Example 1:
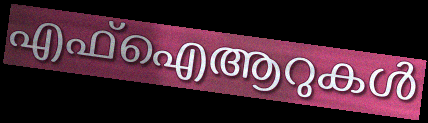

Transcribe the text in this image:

എഫ്ഐആറുകൾ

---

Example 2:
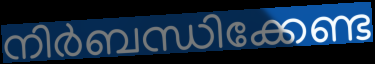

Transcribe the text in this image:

നിർബന്ധിക്കേണ്ട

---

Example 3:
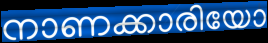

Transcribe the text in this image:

നാണക്കാരിയോ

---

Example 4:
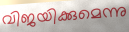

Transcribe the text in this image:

വിജയിക്കുമെന്നു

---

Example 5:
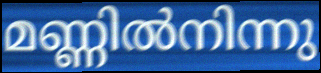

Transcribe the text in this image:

മണ്ണിൽനിന്നു